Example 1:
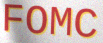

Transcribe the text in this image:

FOMC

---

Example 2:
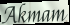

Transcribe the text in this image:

Akmam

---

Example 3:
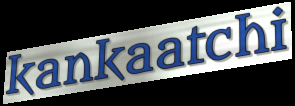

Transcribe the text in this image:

kankaatchi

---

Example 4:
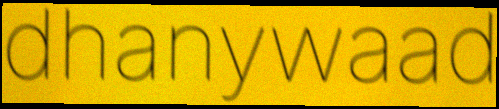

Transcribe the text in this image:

dhanywaad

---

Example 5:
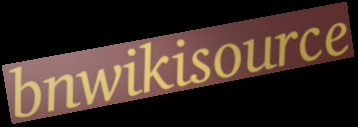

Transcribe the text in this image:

bnwikisource